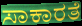
ಸಾಕಾರತೆ